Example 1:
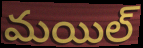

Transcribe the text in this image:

మయిల్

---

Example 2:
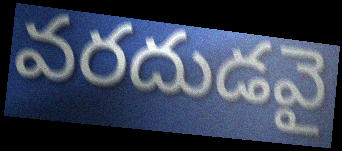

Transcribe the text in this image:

వరదుడవై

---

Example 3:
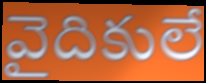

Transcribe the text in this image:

వైదికులే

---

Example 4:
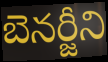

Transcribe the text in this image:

బెనర్జీని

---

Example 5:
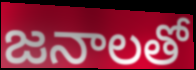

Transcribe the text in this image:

జనాలతో